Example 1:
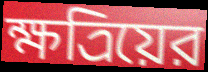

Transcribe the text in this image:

ক্ষত্রিয়ের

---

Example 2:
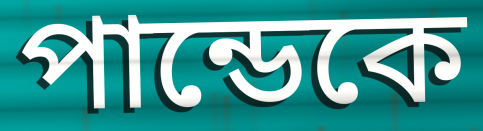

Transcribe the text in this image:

পান্ডেকে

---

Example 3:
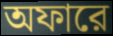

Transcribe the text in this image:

অফারে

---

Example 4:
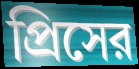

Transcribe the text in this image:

প্রিসের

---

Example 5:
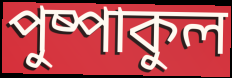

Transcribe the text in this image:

পুষ্পাকুল